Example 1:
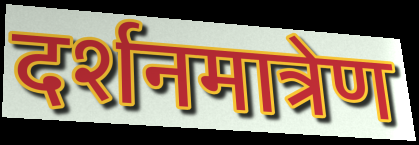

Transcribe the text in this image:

दर्शनमात्रेण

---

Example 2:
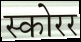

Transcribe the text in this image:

स्कोरर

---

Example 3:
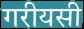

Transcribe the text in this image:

गरीयसी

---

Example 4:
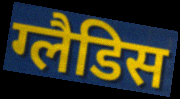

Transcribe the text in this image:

ग्लैडिस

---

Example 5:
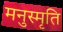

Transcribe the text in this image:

मनुस्मृति